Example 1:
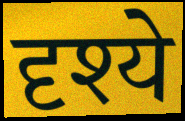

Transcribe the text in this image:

दृश्‍ये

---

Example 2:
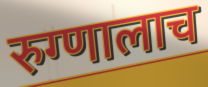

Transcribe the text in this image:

रुग्णालाच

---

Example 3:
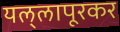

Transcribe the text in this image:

यल्लापूरकर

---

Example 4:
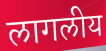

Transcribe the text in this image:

लागलीय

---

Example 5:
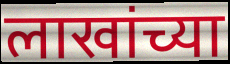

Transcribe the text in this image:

लाखांच्या